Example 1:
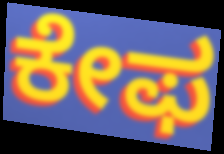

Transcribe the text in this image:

ಕೇಫ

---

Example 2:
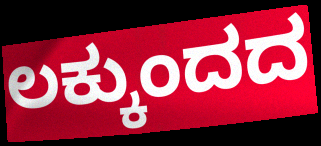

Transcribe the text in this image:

ಲಕ್ಕುಂದದ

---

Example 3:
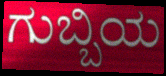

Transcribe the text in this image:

ಗುಬ್ಬಿಯ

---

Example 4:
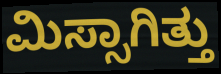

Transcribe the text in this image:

ಮಿಸ್ಸಾಗಿತ್ತು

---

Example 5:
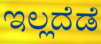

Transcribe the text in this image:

ಇಲ್ಲದೆಡೆ